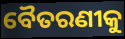
ବୈତରଣୀକୁ